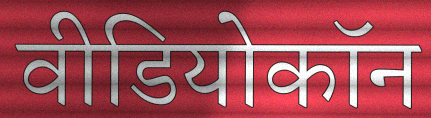
वीडियोकॉन